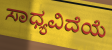
ಸಾಧ್ಯವಿದೆಯೆ